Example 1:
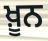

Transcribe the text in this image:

ਖ਼ੂਨ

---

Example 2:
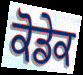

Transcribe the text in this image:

ਕੋਡੇਕ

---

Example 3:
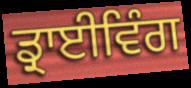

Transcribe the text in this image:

ਡ੍ਰਾਈਵਿੰਗ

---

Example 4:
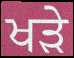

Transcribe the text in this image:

ਖੜੇ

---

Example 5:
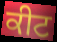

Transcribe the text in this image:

ਕੀਟ